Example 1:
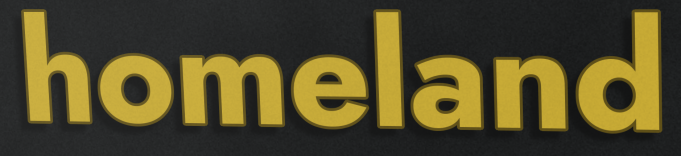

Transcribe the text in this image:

homeland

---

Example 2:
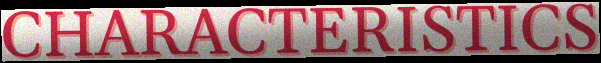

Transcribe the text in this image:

CHARACTERISTICS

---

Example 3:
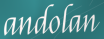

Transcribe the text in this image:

andolan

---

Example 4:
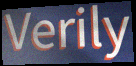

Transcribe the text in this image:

Verily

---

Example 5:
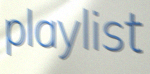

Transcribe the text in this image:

playlist